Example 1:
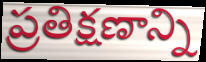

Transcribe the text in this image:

ప్రతిక్షణాన్ని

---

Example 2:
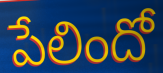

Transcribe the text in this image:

పేలిందో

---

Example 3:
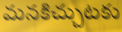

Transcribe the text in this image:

మనకిచ్చుటకు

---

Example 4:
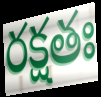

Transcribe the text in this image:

రక్షతః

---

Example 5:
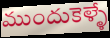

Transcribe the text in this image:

ముందుకెళ్ళే